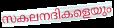
സകലനദികളെയും